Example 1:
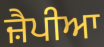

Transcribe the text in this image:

ਜ਼ੈਪੀਆ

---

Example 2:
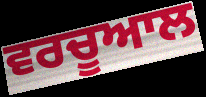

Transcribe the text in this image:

ਵਰਚੂਆਲ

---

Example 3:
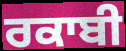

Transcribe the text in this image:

ਰਕਾਬੀ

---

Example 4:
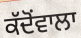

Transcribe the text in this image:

ਕੱਦੋਂਵਾਲਾ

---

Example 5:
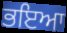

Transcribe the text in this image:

ਭਇਆ